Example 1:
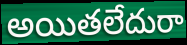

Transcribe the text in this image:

అయితలేదురా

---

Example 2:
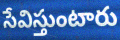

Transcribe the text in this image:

సేవిస్తుంటారు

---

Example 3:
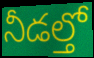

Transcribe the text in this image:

నీడల్తో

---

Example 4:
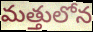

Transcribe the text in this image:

మత్తులోన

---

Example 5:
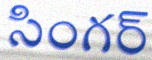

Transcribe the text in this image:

సింగర్